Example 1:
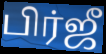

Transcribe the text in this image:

பிர்ஜீ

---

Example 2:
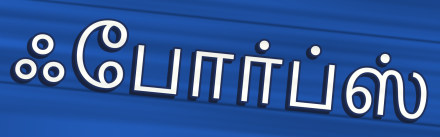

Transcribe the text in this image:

ஃபோர்ப்ஸ்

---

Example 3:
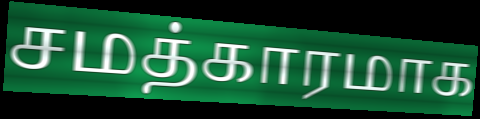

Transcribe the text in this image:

சமத்காரமாக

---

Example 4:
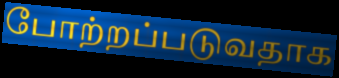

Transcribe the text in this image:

போற்றப்படுவதாக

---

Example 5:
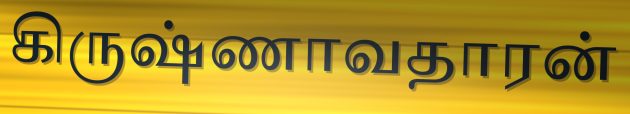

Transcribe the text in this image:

கிருஷ்ணாவதாரன்